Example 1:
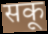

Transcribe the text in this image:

सकू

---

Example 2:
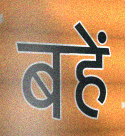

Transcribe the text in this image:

बहें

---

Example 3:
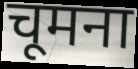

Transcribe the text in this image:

चूमना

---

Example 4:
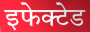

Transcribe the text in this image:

इफेक्टेड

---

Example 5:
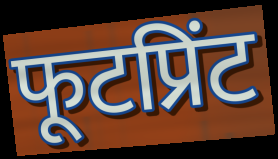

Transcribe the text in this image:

फूटप्रिंट